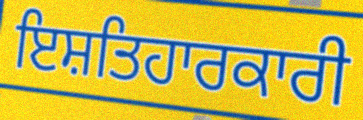
ਇਸ਼ਤਿਹਾਰਕਾਰੀ